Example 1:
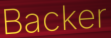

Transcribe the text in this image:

Backer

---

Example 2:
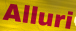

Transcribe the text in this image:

Alluri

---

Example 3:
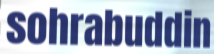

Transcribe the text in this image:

sohrabuddin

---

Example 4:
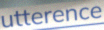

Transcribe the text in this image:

utterence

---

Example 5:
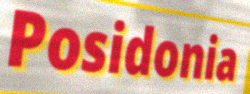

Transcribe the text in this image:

Posidonia